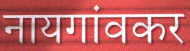
नायगांवकर